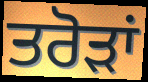
ਤਰੋੜਾਂ